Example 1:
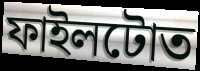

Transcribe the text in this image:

ফাইলটোত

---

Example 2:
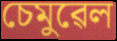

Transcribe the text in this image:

চেমুৱেল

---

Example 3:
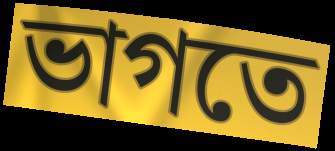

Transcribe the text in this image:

ভাগতে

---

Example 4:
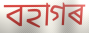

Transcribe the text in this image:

বহাগৰ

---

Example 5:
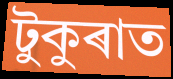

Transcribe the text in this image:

টুকুৰাত